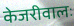
केजरीवालः